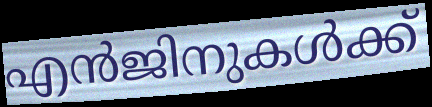
എൻജിനുകൾക്ക്